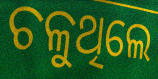
ଚଳୁଥିଲେ